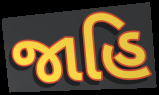
જાહિ